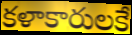
కళాకారులకే